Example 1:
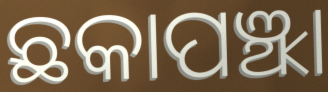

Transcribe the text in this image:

ଛକାପଞ୍ଝା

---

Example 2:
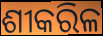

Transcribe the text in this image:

ଶୀକରିଳ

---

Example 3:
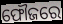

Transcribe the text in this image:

ଫୌଜରେ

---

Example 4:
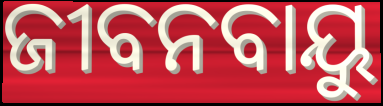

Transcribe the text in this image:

ଜୀବନବାୟୁ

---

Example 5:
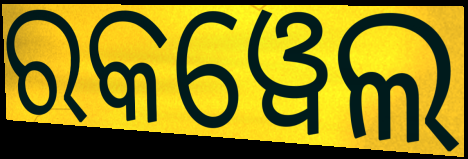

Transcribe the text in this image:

ରକୱେଲ